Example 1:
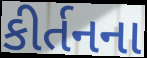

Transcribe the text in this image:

કીર્તનના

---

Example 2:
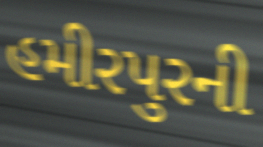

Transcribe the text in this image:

હમીરપુરની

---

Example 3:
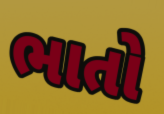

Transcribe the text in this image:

ભાતો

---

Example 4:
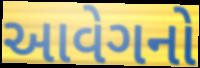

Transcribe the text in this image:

આવેગનો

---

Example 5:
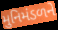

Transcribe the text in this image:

મુનિમંડળને